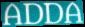
ADDA